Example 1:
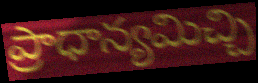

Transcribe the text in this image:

ప్రాధాన్యమిచ్చి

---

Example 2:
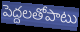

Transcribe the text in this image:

పెద్దలతోపాటు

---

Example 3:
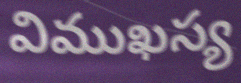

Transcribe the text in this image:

విముఖస్య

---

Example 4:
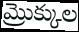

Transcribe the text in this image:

మ్రొక్కుల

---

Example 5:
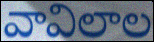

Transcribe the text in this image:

వావిలాల